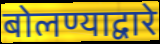
बोलण्याद्वारे